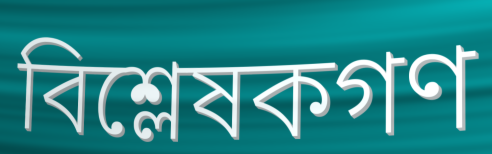
বিশ্লেষকগণ